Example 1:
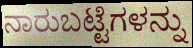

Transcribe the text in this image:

ನಾರುಬಟ್ಟೆಗಳನ್ನು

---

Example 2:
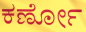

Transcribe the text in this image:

ಕರ್ಣೋ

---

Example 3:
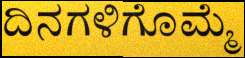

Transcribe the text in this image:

ದಿನಗಳಿಗೊಮ್ಮೆ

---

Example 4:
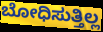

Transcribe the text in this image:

ಬೋಧಿಸುತ್ತಿಲ್ಲ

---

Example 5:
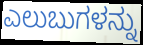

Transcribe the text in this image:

ಎಲುಬುಗಳನ್ನು